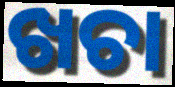
ଖଚା